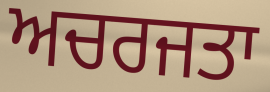
ਅਚਰਜਤਾ